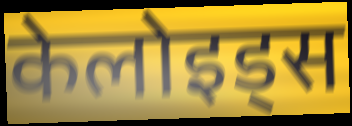
केलोइड्स